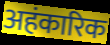
अहंकारिक